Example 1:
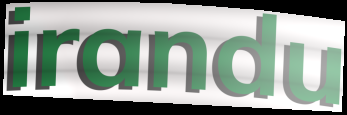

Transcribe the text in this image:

irandu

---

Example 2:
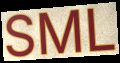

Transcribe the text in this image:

SML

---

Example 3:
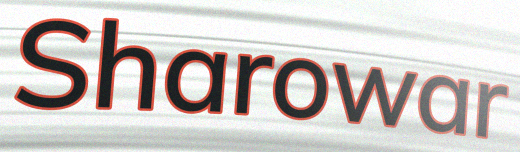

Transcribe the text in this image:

Sharowar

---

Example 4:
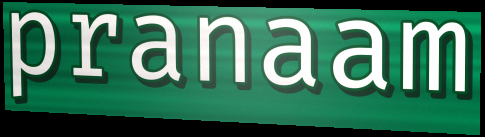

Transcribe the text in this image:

pranaam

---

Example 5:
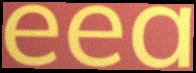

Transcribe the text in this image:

eea